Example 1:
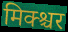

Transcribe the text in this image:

मिक्श्चर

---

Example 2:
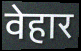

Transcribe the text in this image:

वेहार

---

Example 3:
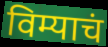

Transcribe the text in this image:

विम्याचं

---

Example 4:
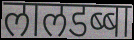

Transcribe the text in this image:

लालडब्बा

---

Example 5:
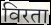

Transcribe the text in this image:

विरता